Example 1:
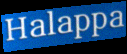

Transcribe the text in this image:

Halappa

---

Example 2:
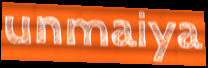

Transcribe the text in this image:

unmaiya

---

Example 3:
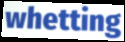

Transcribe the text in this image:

whetting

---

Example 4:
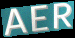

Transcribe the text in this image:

AER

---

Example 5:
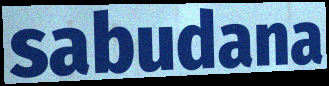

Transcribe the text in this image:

sabudana